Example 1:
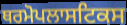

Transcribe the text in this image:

ਥਰਮੋਪਲਾਸਟਿਕਸ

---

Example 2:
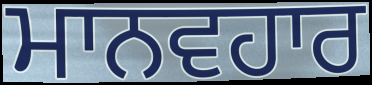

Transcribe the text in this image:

ਮਾਨਵਹਾਰ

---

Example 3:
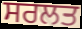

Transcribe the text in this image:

ਸਰਲਤ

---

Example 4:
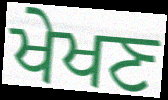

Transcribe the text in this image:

ਖੇਖਣ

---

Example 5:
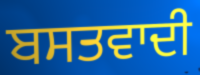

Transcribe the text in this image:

ਬਸਤਵਾਦੀ